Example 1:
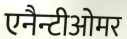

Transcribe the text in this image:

एनैन्टीओमर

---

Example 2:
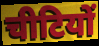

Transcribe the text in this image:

चीटियों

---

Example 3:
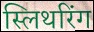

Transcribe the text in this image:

स्लिथरिंग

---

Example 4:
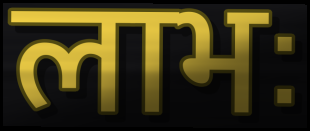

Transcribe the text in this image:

लाभः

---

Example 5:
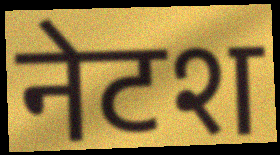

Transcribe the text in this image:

नेटश